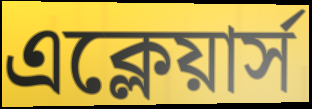
এক্লেয়ার্স